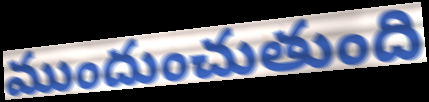
ముందుంచుతుంది